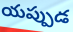
యప్పుడ